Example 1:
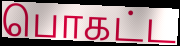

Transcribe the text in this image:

பொகட்ட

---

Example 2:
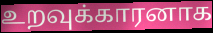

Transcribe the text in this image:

உறவுக்காரனாக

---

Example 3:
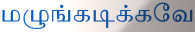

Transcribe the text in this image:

மழுங்கடிக்கவே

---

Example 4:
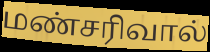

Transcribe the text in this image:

மண்சரிவால்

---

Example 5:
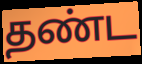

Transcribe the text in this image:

தண்ட